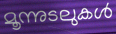
മൂന്നുടലുകൾ